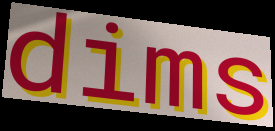
dims